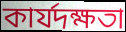
কাৰ্যদক্ষতা